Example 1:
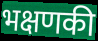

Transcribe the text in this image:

भक्षणकी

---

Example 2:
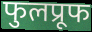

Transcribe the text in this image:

फुलप्रूफ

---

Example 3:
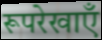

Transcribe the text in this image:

रूपरेखाएँ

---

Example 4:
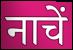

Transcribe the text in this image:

नाचें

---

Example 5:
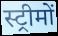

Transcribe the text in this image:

स्ट्रीमों